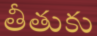
తీతుకు